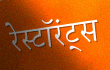
रेस्टॉरंट्‌स